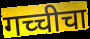
गच्चीचा